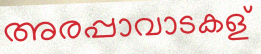
അരപ്പാവാടകള്